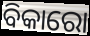
ବିକାରୋ